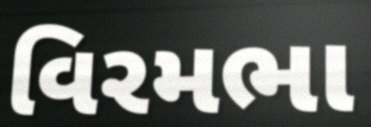
વિરમભા